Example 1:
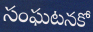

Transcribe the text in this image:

సంఘటనకో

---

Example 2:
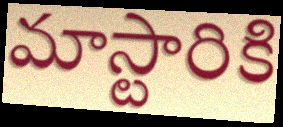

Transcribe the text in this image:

మాస్టారికి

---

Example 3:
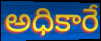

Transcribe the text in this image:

అధికారే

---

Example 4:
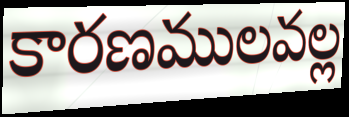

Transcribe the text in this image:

కారణములవల్ల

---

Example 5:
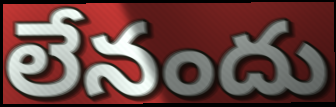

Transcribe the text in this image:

లేనందు